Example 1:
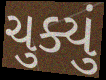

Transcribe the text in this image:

ચુક્યું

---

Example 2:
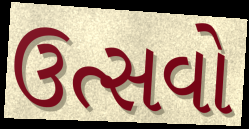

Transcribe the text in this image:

ઉત્સવો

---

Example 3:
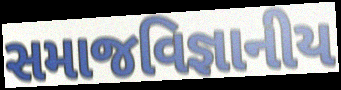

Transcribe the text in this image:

સમાજવિજ્ઞાનીય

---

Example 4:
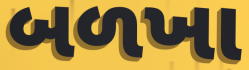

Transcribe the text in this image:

બળખા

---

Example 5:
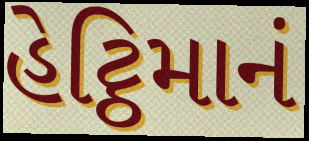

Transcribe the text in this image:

હેટ્ઠિમાનં